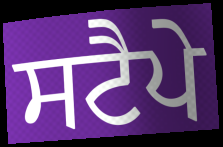
ਸਟੈਪੇ